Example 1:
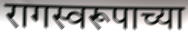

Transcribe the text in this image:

रागस्वरूपाच्या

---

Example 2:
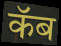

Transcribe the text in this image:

कॅब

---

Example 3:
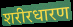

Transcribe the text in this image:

शरीरधारण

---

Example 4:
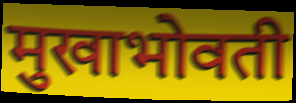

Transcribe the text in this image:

मुखाभोवती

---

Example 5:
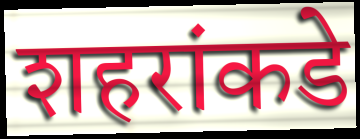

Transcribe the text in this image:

शहरांकडे